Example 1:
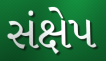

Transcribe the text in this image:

સંક્ષેપ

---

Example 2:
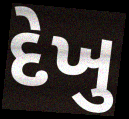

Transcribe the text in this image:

દેખુ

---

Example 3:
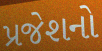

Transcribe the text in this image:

પ્રજેશનો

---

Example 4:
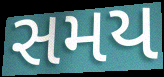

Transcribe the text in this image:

સમય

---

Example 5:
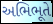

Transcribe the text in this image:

અભિભૂતે